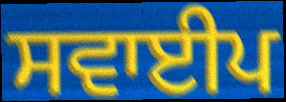
ਸਵਾਈਪ